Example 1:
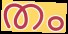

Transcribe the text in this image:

തം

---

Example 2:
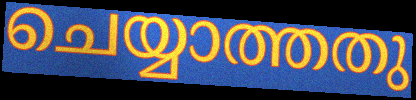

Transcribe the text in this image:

ചെയ്യാത്തതു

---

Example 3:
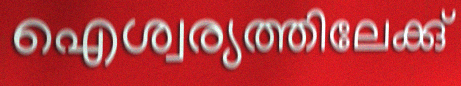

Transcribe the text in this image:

ഐശ്വര്യത്തിലേക്കു്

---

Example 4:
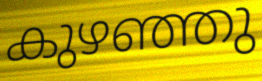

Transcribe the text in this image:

കുഴഞ്ഞു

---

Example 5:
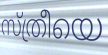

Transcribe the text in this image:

സ്ത്രീയെ